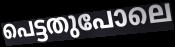
പെട്ടതുപോലെ